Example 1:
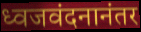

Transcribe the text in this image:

ध्वजवंदनानंतर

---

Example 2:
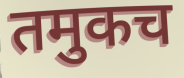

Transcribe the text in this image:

तमुकच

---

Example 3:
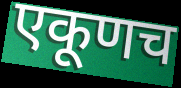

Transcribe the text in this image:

एकूणच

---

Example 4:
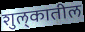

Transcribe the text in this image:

शुल्कातील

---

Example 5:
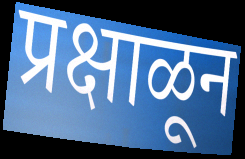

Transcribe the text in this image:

प्रक्षाळून